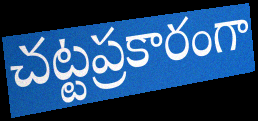
చట్టప్రకారంగా